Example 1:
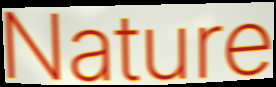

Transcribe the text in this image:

Nature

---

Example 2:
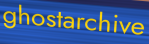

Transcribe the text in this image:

ghostarchive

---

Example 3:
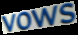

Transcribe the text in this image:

vows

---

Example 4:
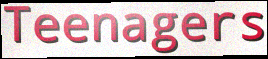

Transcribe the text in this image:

Teenagers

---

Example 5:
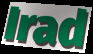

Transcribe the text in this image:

Irad